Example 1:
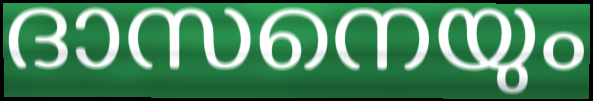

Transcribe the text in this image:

ദാസനെയും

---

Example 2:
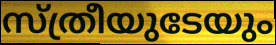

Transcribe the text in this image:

സ്ത്രീയുടേയും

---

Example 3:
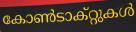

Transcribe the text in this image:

കോൺടാക്റ്റുകൾ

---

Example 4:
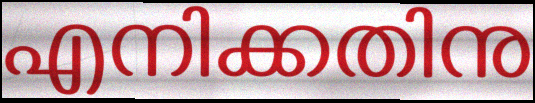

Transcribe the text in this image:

എനിക്കതിനു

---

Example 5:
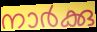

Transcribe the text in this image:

നാർക്കു